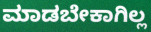
ಮಾಡಬೇಕಾಗಿಲ್ಲ